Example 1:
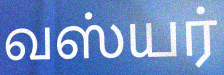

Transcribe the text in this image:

வஸ்யர்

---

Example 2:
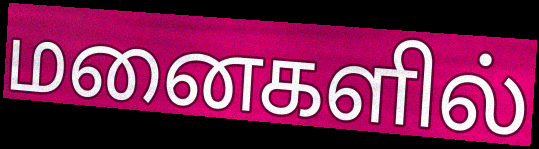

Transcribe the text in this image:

மனைகளில்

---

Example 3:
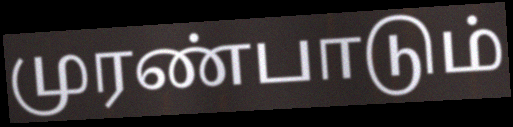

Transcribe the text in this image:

முரண்பாடும்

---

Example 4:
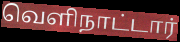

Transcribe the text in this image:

வெளிநாட்டார்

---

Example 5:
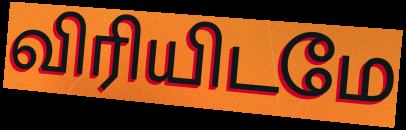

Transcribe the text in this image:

விரியிடமே